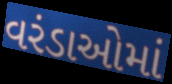
વરંડાઓમાં